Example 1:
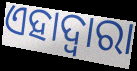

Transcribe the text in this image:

ଏହାଦ୍ୱାରା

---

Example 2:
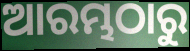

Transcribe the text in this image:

ଆରମ୍ଭଠାରୁ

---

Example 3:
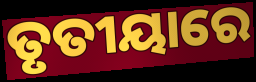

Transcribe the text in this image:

ତୃତୀୟାରେ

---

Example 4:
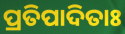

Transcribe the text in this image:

ପ୍ରତିପାଦିତାଃ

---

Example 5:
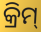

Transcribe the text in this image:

କ୍ରିମ୍